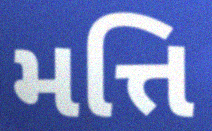
મત્તિ